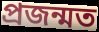
প্ৰজন্মত